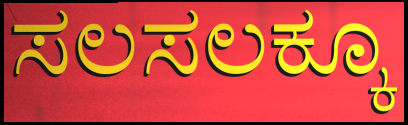
ಸಲಸಲಕ್ಕೂ